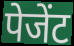
पेजेंट